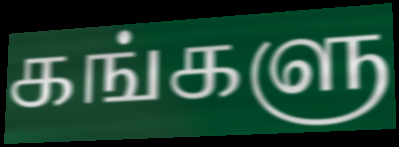
கங்களு